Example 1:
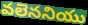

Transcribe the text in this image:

వలెననియు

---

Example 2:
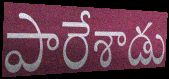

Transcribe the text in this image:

పారేశాడు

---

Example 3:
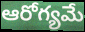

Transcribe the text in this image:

ఆరోగ్యమే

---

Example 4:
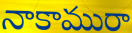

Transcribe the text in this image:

నాకామురా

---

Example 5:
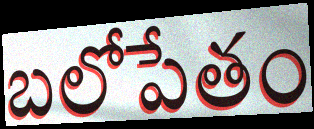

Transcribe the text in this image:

బలోపేతం